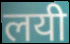
लयी